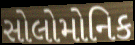
સોલોમોનિક